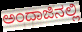
ಅಂದಾಜಿನಲ್ಲಿ